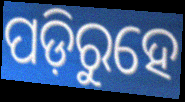
ପଡ଼ିରୁହେ